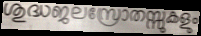
ശുദ്ധജലസ്രോതസ്സുകളും